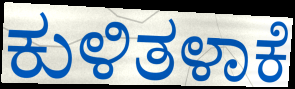
ಕುಳಿತಳಾಕೆ